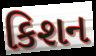
કિશન